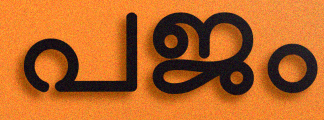
പജം